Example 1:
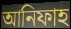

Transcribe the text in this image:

আনিফাহ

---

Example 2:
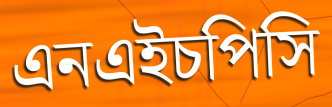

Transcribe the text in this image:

এনএইচপিসি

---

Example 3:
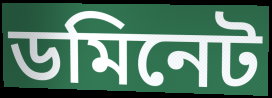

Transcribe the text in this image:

ডমিনেট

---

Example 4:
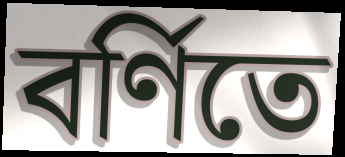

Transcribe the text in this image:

বর্ণিতে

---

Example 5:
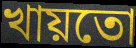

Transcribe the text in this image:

খায়তো